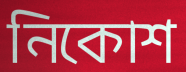
নিকোশ